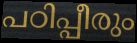
പഠിപ്പീരും